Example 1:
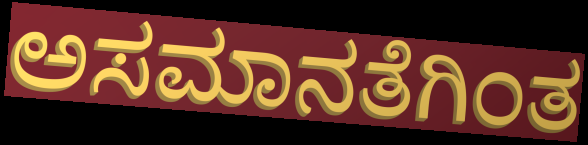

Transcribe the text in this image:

ಅಸಮಾನತೆಗಿಂತ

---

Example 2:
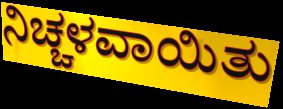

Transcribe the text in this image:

ನಿಚ್ಚಳವಾಯಿತು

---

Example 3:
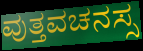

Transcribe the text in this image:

ವುತ್ತವಚನಸ್ಸ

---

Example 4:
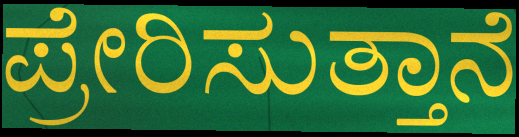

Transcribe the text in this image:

ಪ್ರೇರಿಸುತ್ತಾನೆ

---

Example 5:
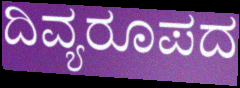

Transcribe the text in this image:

ದಿವ್ಯರೂಪದ